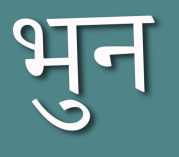
भुन